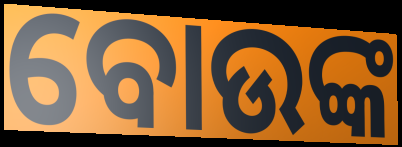
ବୋଉଙ୍କ